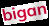
bigan